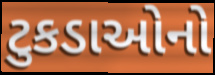
ટુકડાઓનો